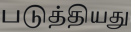
படுத்தியது